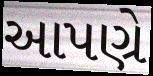
આપણ્રે